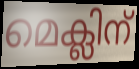
മെക്ലിന്